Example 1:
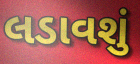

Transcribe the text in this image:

લડાવશું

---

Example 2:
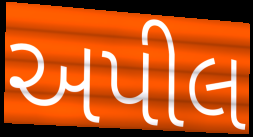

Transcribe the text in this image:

અપીલ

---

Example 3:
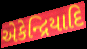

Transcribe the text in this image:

એકેન્દ્રિયાદિ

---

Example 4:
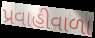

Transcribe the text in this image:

પ્રવાહીવાળા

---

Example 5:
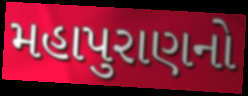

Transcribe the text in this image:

મહાપુરાણનો